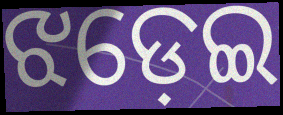
ଝଡ଼େଇ